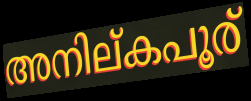
അനില്കപൂര്